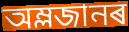
অম্লজানৰ